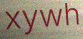
xywh